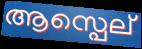
ആസ്പെല്